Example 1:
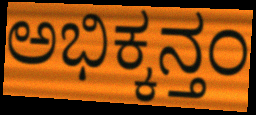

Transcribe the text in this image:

ಅಭಿಕ್ಕನ್ತಂ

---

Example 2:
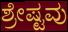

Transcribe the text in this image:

ಶ್ರೇಷ್ಟವು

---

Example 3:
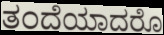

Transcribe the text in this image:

ತಂದೆಯಾದರೊ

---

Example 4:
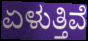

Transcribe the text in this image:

ಏಳುತ್ತಿವೆ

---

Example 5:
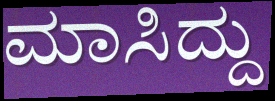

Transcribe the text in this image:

ಮಾಸಿದ್ದು